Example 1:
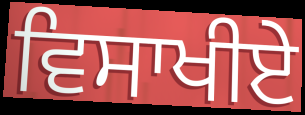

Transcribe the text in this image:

ਵਿਸਾਖੀਏੇ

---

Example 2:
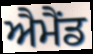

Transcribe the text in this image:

ਐਮੈਂਡ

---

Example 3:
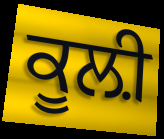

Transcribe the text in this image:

ਕੂਲ਼ੀ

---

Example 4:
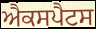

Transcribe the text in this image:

ਐਕਸਪੈਟਸ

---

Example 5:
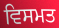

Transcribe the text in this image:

ਵਿਸਮਤ